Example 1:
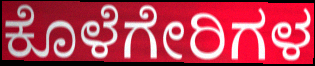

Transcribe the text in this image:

ಕೊಳೆಗೇರಿಗಳ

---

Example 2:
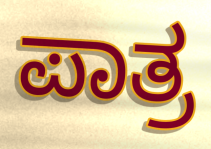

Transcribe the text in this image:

ಪಾತ್ರ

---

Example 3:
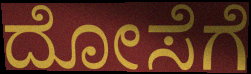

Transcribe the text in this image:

ದೋಸೆಗೆ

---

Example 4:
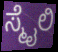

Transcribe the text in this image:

ಸ್ಮೈಲಿ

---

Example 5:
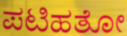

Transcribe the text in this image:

ಪಟಿಹತೋ